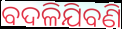
ବଦଳିଯିବଣି